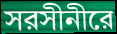
সরসীনীরে